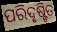
ପରିଦୃଷ୍ଟିତ